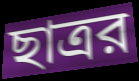
ছাত্রর